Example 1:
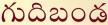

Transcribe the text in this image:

గుదిబండ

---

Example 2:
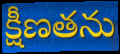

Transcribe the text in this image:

క్షీణతను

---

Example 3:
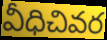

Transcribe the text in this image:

వీధిచివర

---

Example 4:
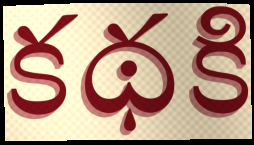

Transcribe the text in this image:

కథకి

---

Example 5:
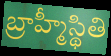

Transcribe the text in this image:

బ్రాహ్మీస్థితి